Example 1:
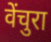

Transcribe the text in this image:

वेंचुरा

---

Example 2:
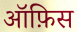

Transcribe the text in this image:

ऑफ़िस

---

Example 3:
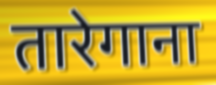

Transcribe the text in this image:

तारेगाना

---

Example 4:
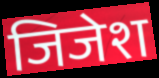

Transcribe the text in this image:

जिजेश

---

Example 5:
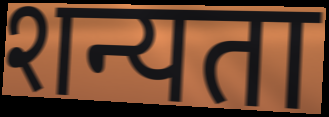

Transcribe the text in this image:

शन्यता